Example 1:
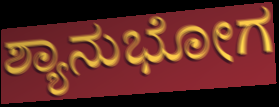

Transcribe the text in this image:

ಶ್ಯಾನುಭೋಗ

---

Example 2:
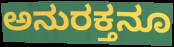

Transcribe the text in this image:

ಅನುರಕ್ತನೂ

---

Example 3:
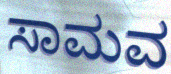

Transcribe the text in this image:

ಸಾಮವ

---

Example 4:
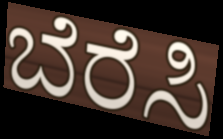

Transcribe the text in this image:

ಬೆರೆಸಿ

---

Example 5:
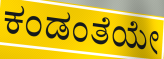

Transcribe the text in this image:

ಕಂಡಂತೆಯೇ